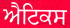
ਐਟਿਕਸ